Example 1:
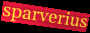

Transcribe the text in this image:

sparverius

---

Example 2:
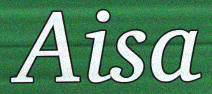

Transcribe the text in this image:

Aisa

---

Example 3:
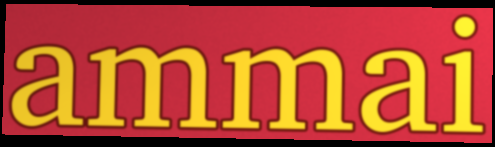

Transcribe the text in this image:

ammai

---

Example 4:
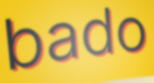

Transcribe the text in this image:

bado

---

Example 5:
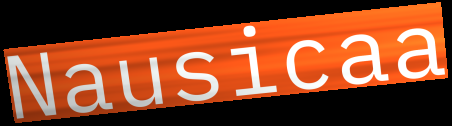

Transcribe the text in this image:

Nausicaa